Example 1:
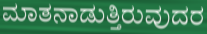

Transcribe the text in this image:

ಮಾತನಾಡುತ್ತಿರುವುದರ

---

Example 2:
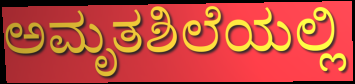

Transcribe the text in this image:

ಅಮೃತಶಿಲೆಯಲ್ಲಿ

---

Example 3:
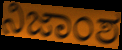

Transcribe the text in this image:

ನಿಜಾಂಶ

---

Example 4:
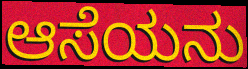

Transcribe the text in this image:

ಆಸೆಯನು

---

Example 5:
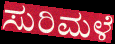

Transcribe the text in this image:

ಸುರಿಮಳೆ